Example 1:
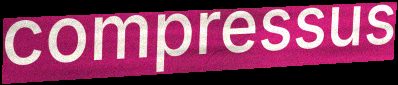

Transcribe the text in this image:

compressus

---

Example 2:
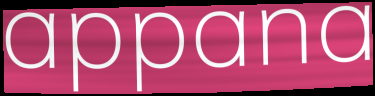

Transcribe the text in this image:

appana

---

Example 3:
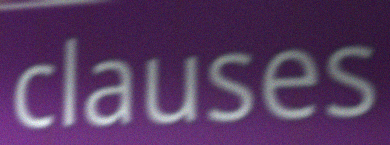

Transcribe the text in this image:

clauses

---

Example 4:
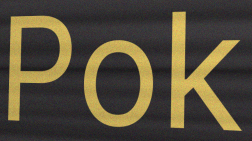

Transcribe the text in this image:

Pok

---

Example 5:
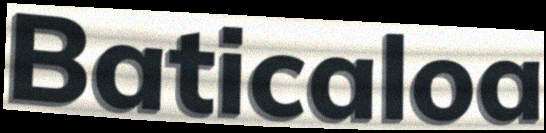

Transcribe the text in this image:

Baticaloa